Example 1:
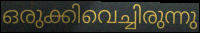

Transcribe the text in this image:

ഒരുക്കിവെച്ചിരുന്നു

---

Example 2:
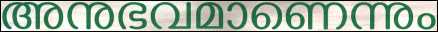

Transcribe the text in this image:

അനുഭവമാണെന്നും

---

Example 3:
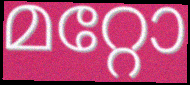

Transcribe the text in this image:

മറ്റോ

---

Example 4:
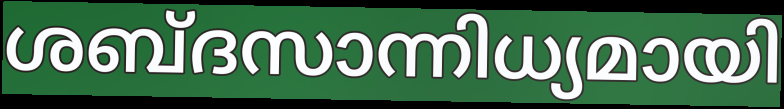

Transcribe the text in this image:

ശബ്ദസാന്നിധ്യമായി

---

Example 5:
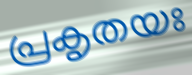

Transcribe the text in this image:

പ്രകൃതയഃ